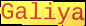
Galiya